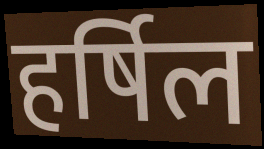
हर्षिल